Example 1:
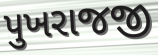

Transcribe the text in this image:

પુખરાજજી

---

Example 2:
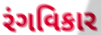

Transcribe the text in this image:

રંગવિકાર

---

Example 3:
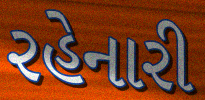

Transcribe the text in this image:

રહેનારી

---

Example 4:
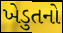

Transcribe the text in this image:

ખેડુતનો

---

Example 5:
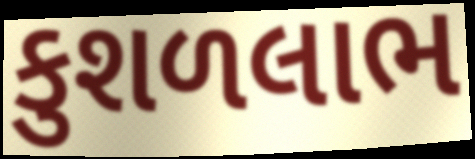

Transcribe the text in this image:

કુશળલાભ